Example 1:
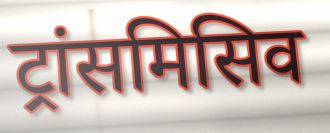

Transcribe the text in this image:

ट्रांसमिसिव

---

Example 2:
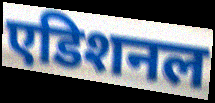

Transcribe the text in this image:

एडिशनल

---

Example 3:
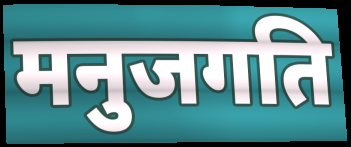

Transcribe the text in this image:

मनुजगति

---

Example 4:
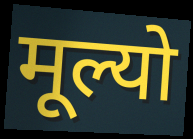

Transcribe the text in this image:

मूल्यो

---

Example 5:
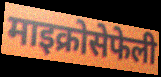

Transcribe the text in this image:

माइक्रोसेफेली